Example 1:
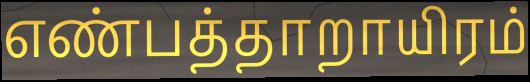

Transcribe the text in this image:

எண்பத்தாறாயிரம்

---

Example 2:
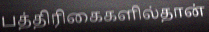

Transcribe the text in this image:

பத்திரிகைகளில்தான்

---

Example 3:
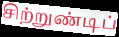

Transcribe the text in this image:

சிற்றுண்டிப்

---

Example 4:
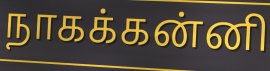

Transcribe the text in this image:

நாகக்கன்னி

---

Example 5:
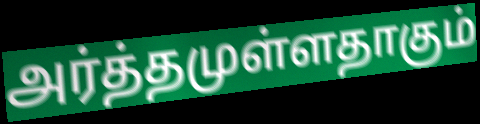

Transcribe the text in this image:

அர்த்தமுள்ளதாகும்